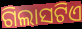
ଗିଲାସଟିଏ